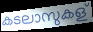
കടലാസുകള്